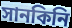
সানকিনি